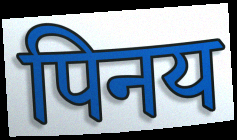
पिनय